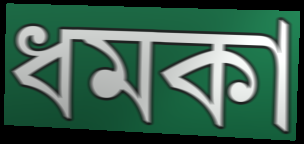
ধমকা